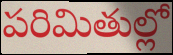
పరిమితుల్లో